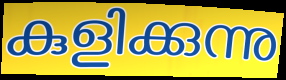
കുളിക്കുന്നു